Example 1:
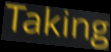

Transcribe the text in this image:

Taking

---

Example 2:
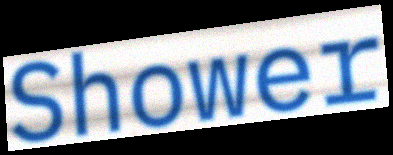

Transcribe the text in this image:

Shower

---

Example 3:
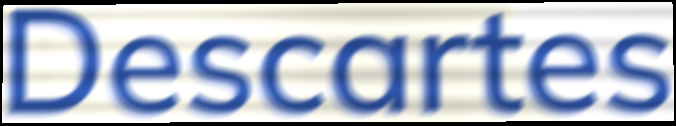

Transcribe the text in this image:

Descartes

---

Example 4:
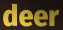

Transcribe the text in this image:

deer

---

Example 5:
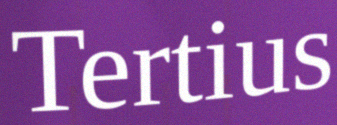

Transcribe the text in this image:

Tertius